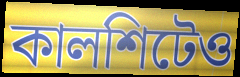
কালশিটেও